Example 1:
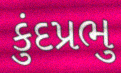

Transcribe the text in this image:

કુંદપ્રભુ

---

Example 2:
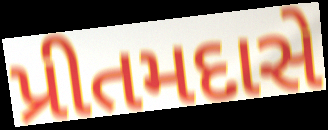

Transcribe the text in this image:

પ્રીતમદાસે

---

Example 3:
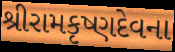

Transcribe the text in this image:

શ્રીરામકૃષ્ણદેવના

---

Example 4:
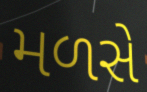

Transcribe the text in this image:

મળસે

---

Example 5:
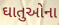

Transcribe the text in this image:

ઘાતુઓના